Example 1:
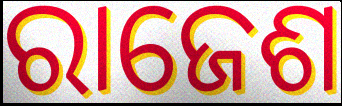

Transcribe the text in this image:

ରାଜେଶ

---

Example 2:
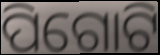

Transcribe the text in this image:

ପିଗୋଟି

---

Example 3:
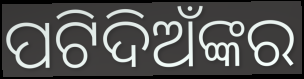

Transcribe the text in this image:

ପଟିଦିଅଁଙ୍କର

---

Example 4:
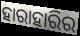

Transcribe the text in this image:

ହାରାହାରିର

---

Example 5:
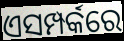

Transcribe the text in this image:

ଏସମ୍ପର୍କରେ